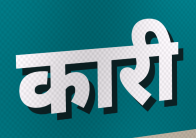
कारी